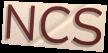
NCS